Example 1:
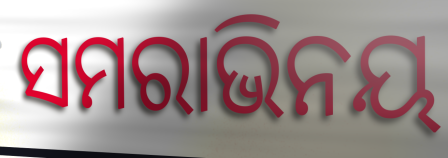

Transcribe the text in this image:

ସମରାଭିନୟ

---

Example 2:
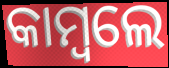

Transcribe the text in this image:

କାମ୍ବଲେ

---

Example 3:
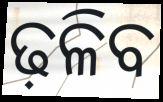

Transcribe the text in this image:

ଢ଼ଳିବ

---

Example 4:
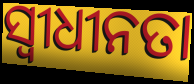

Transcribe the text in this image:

ସ୍ୱୀଧୀନତା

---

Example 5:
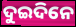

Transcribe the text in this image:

ଦୁଇଦିନେ